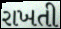
રાખતી